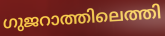
ഗുജറാത്തിലെത്തി